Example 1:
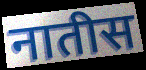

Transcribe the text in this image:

नातीस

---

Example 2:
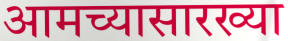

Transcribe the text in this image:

आमच्यासारख्या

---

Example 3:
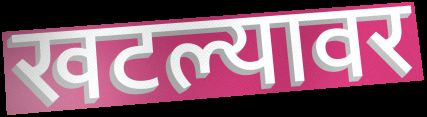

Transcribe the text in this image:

खटल्यावर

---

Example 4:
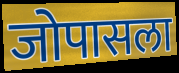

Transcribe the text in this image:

जोपासला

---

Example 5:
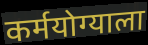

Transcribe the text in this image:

कर्मयोग्याला